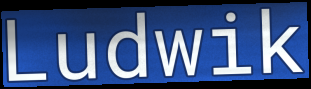
Ludwik